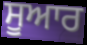
ਸੂਆਰ